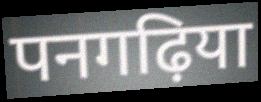
पनगढ़िया